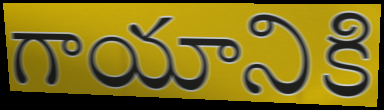
గాయానికి